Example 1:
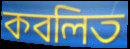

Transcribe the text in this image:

কবলিত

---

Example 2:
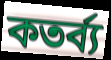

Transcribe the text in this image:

কতর্ব্য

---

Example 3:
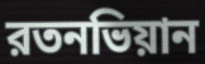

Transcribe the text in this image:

রতনভিয়ান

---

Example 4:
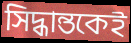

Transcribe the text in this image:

সিদ্ধান্তকেই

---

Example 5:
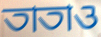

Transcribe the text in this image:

তাতাও